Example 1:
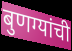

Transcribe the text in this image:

बुणग्यांची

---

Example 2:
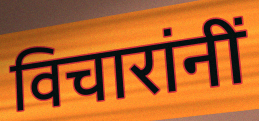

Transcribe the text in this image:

विचारांनीं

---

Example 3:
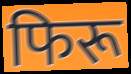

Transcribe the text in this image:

फिरू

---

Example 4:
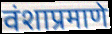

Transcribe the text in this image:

वंशाप्रमाणे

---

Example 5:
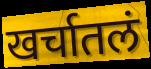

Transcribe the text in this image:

खर्चातलं